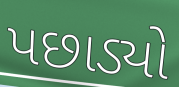
પછાડ્યો